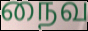
நைவ